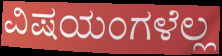
ವಿಷಯಂಗಳೆಲ್ಲ